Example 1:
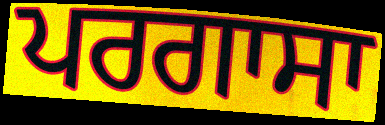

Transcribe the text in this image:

ਪਰਗਾਸਾ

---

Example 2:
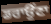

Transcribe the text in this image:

ਡਰਾਉਂਣਾ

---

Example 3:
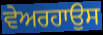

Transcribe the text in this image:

ਵੇਅਰਹਾਉਸ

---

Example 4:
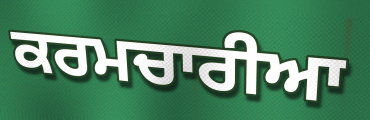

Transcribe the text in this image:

ਕਰਮਚਾਰੀਆ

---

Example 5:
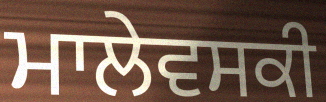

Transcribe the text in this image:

ਮਾਲੇਵਸਕੀ